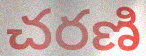
చరణి